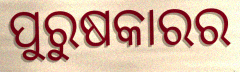
ପୁରୁଷକାରର